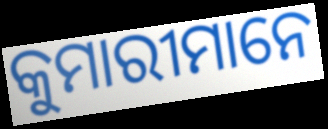
କୁମାରୀମାନେ